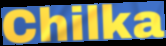
Chilka